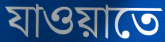
যাওয়াতে